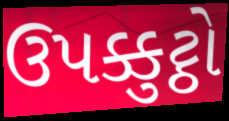
ઉપક્કુટ્ઠો